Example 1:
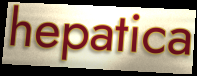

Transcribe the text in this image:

hepatica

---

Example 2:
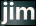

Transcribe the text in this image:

jim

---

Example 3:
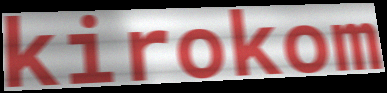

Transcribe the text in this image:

kirokom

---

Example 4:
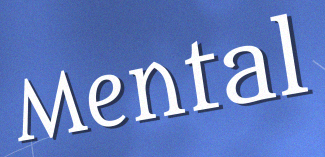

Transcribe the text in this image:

Mental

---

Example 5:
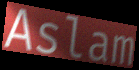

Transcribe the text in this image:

Aslam